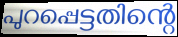
പുറപ്പെട്ടതിന്റെ